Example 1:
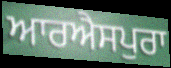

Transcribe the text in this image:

ਆਰਐਸਪੁਰਾ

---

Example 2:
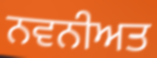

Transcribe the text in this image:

ਨਵਨੀਅਤ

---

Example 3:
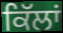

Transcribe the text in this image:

ਕਿੱਲਾਂ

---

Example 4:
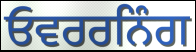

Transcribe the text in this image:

ਓਵਰਰਨਿੰਗ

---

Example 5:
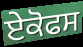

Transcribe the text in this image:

ਏਕੋਫਸ